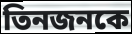
তিনজনকে